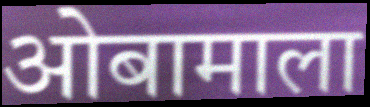
ओबामाला